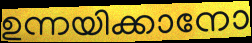
ഉന്നയിക്കാനോ